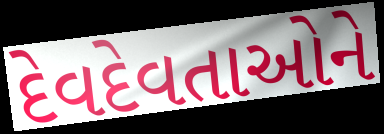
દેવદેવતાઓને